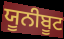
ਯੂਨੀਬੂਟ